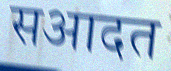
सआदत